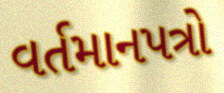
વર્તમાનપત્રો